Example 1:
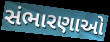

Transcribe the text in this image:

સંભારણાઓ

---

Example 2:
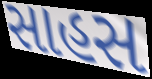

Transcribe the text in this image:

સાહસ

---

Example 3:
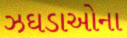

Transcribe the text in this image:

ઝઘડાઓના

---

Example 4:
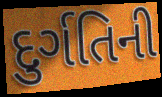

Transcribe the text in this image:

દુર્ગતિની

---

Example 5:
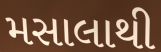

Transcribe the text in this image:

મસાલાથી